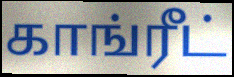
காங்ரீட்